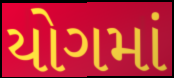
યોગમાં